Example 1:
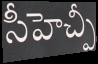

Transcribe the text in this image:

సీహెచ్పీ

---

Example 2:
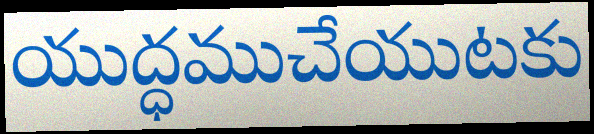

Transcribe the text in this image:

యుద్ధముచేయుటకు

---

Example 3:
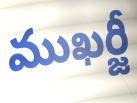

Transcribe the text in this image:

ముఖర్జీ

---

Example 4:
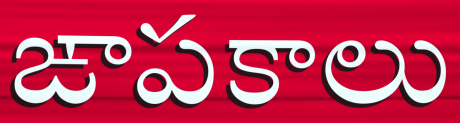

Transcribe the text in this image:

ఙాపకాలు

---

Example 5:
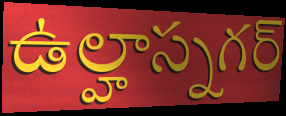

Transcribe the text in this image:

ఉల్హాస్నగర్